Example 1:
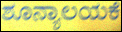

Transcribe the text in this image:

ಶೂನ್ಯಾಲಯಕೆ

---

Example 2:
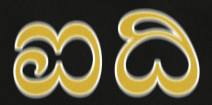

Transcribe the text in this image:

ಐದಿ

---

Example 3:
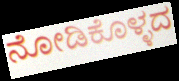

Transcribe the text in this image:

ನೋಡಿಕೊಳ್ಳದ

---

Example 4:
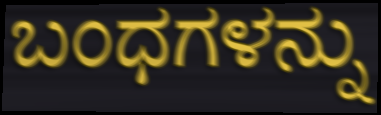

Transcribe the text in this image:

ಬಂಧಗಳನ್ನು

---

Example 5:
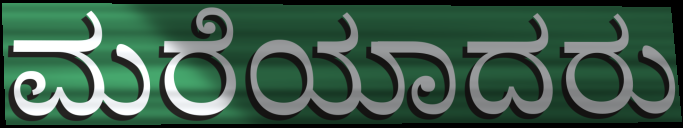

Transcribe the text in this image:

ಮರೆಯಾದರು